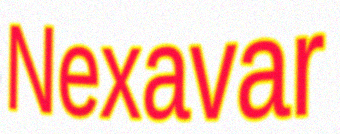
Nexavar